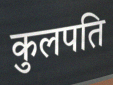
कुलपति